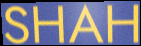
SHAH